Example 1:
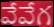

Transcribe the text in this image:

వేవేగ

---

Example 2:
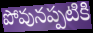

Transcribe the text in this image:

పోవునప్పటికి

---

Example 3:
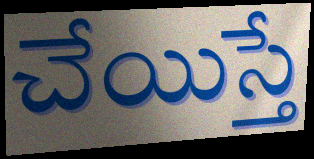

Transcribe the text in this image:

చేయిస్తే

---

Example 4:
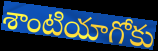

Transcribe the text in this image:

శాంటియాగోకు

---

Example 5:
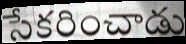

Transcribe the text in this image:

సేకరించాడు